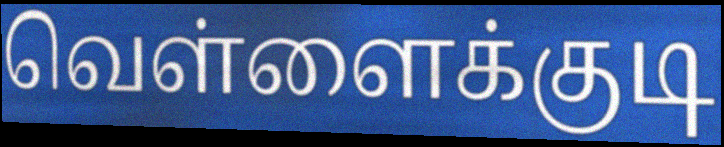
வெள்ளைக்குடி